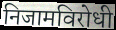
निजामविरोधी